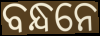
ବନ୍ଧନେ